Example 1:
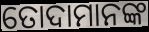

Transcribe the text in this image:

ତୋଦାମାନଙ୍କ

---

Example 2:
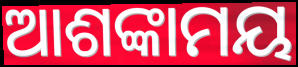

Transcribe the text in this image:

ଆଶଙ୍କାମୟ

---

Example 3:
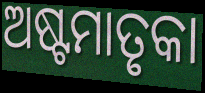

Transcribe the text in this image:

ଅଷ୍ଟମାତୃକା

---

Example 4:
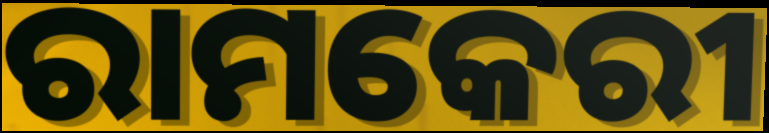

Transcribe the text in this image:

ରାମକେରୀ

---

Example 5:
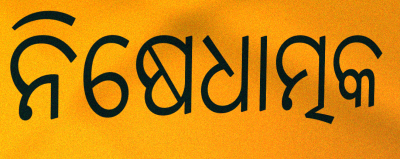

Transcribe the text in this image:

ନିଷେଧାତ୍ମକ